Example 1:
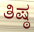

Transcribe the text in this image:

ತಿಷ್ಠ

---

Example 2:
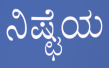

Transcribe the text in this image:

ನಿಷ್ಟೆಯ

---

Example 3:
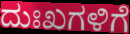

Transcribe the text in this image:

ದುಃಖಗಳಿಗೆ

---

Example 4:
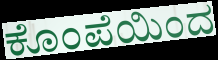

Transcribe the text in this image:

ಕೊಂಪೆಯಿಂದ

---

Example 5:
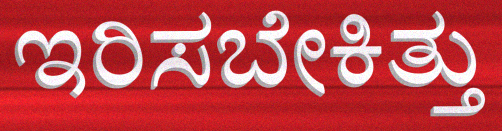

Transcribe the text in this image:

ಇರಿಸಬೇಕಿತ್ತು